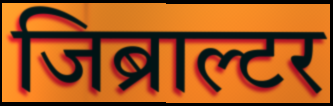
जिब्राल्टर